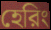
হেরিং